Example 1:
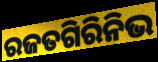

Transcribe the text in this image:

ରଜତଗିରିନିଭ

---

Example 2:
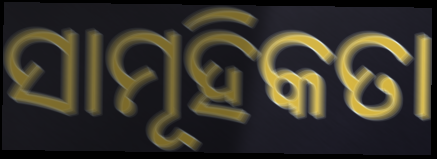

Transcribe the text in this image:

ସାମୂହିକତା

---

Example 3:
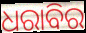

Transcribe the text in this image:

ଧରାବିର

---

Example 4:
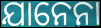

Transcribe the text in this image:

ଯାନେନା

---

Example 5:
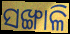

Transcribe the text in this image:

ସଙ୍ଖାଳି